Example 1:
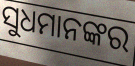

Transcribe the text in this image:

ସୁଧମାନଙ୍କର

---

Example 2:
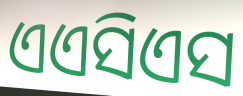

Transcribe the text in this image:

ଏଏସିଏସ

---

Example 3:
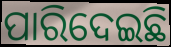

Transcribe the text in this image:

ପାରିଦେଇଛି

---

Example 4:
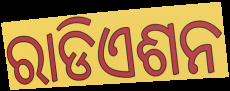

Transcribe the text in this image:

ରାଡିଏଶନ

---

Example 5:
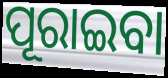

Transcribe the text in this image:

ପୂରାଇବା